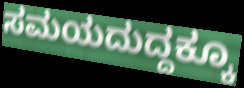
ಸಮಯದುದ್ದಕ್ಕೂ